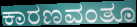
ಕಾರಣವಂತೂ